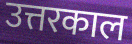
उत्तरकाल